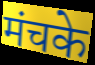
मंचके